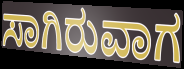
ಸಾಗಿರುವಾಗ